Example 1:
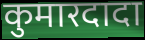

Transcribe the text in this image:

कुमारदादा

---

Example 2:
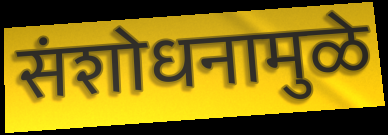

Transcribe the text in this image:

संशोधनामुळे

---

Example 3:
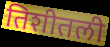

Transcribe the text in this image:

तिशीतली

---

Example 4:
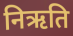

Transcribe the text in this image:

निऋति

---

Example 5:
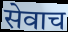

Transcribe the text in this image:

सेवाच